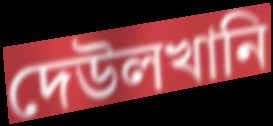
দেউলখানি